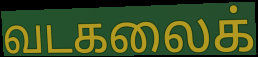
வடகலைக்